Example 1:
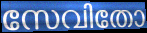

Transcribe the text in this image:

സേവിതോ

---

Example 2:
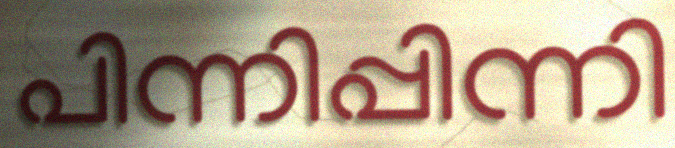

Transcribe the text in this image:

പിന്നിപ്പിന്നി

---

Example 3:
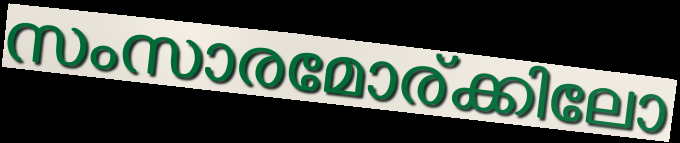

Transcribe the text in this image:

സംസാരമോര്ക്കിലോ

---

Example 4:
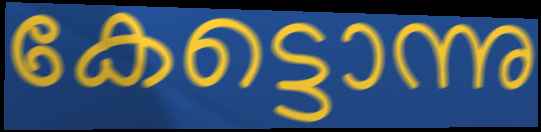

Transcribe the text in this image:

കേട്ടൊന്നു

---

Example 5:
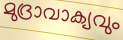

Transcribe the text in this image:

മുദ്രാവാക്യവും